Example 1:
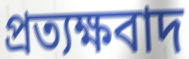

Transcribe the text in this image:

প্রত্যক্ষবাদ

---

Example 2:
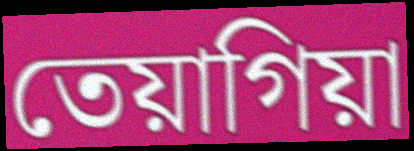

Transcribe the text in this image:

তেয়াগিয়া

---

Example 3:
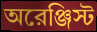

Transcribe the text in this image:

অরেঞ্জিস্ট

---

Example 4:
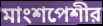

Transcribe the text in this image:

মাংশপেশীর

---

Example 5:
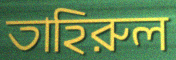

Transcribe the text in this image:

তাহিরুল